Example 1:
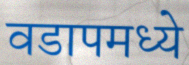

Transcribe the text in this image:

वडापमध्ये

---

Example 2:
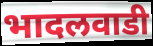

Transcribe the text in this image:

भादलवाडी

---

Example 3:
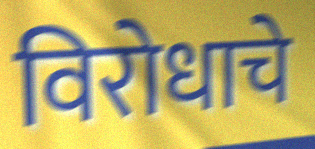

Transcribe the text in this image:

विरोधाचे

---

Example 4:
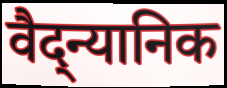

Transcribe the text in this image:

वैद्न्यानिक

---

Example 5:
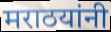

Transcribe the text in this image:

मराठयांनी